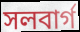
সলবার্গ